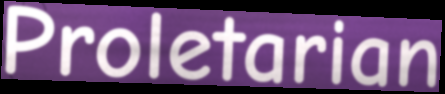
Proletarian